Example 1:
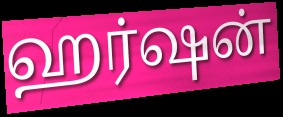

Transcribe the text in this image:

ஹர்ஷன்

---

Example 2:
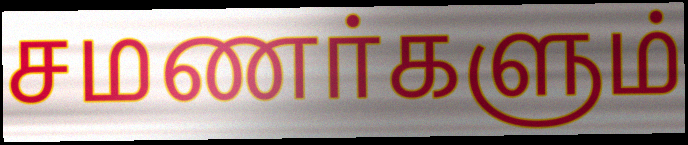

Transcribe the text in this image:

சமணர்களும்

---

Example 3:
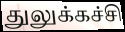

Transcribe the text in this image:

துலுக்கச்சி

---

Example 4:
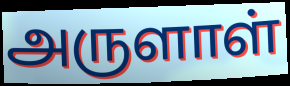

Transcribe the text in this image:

அருளாள்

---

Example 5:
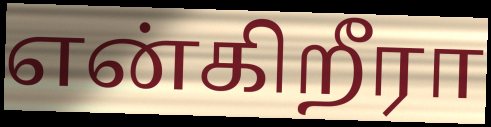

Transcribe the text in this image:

என்கிறீரா